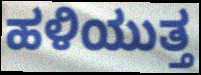
ಹಳಿಯುತ್ತ